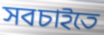
সবচাইতে